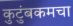
कुटुंबकमचा